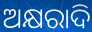
ଅକ୍ଷରାଦି